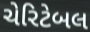
ચેરિટેબલ